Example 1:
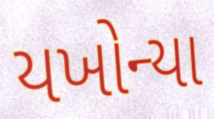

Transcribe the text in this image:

યખોન્યા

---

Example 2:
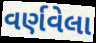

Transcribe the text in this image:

વર્ણવેલા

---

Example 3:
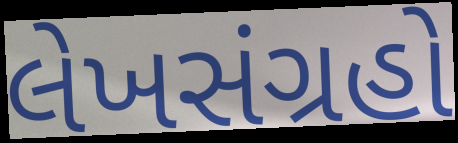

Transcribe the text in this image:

લેખસંગ્રહો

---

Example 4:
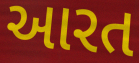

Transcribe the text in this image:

આરત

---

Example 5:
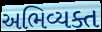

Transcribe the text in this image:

અભિવ્યક્ત